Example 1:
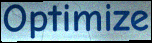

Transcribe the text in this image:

Optimize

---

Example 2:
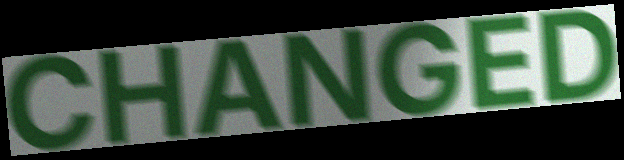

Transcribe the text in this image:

CHANGED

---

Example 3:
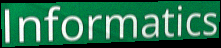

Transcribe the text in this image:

Informatics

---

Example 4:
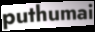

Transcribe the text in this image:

puthumai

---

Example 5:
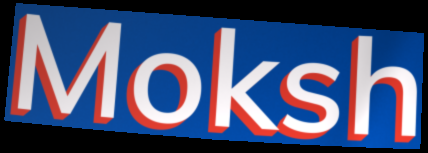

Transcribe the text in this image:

Moksh